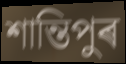
শান্তিপুৰ